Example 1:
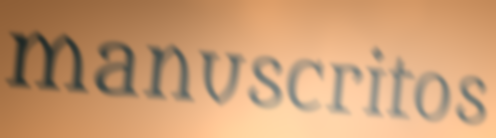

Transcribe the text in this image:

manuscritos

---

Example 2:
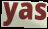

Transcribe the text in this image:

yas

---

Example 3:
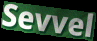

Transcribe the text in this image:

Sevvel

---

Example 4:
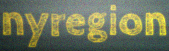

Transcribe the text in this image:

nyregion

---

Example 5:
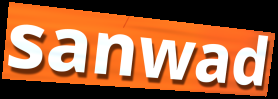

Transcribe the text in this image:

sanwad